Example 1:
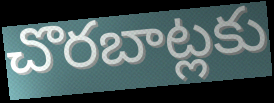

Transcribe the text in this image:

చొరబాట్లకు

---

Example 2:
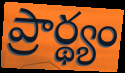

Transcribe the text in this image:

ప్రార్థ్యం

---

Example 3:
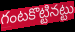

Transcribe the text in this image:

గంటకొట్టినట్టు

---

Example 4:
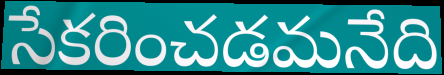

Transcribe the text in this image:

సేకరించడమనేది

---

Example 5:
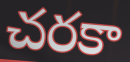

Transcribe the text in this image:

చరకా